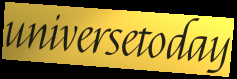
universetoday